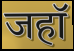
जहॉ